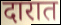
दारात